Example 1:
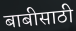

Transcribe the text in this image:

बाबीसाठी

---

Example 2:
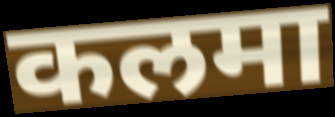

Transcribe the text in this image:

कलमा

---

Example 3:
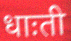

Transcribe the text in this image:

धाःती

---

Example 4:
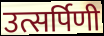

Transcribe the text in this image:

उत्सर्पिणी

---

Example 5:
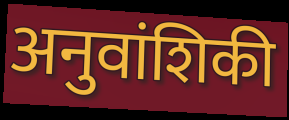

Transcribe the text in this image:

अनुवांशिकी